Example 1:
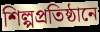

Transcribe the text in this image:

শিল্পপ্রতিষ্ঠানে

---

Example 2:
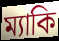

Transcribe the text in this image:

ম্যাকি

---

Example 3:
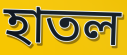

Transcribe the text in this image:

হাতল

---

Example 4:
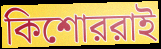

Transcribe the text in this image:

কিশোররাই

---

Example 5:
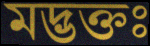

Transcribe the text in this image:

মদ্ভক্তঃ